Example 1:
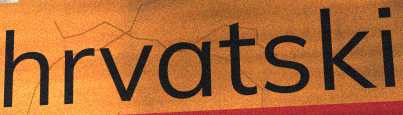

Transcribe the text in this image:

hrvatski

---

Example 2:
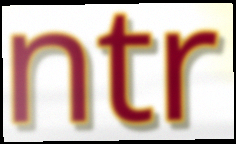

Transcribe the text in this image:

ntr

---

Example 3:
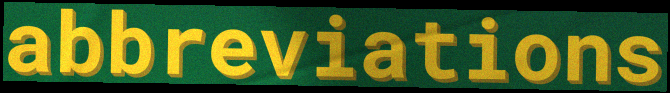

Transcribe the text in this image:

abbreviations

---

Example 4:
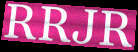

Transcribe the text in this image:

RRJR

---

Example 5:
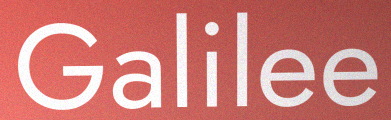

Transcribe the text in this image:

Galilee